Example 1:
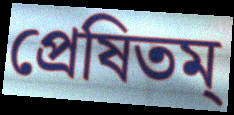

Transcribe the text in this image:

প্রেষিতম্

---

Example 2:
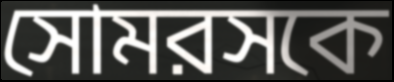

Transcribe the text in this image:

সোমরসকে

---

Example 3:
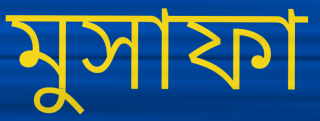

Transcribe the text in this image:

মুসাফা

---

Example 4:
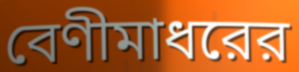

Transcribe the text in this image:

বেণীমাধরের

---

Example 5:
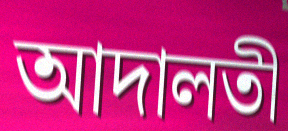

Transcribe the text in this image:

আদালতী